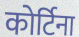
कोर्टिना